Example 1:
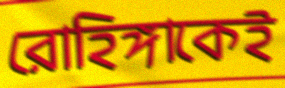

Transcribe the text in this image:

রোহিঙ্গাকেই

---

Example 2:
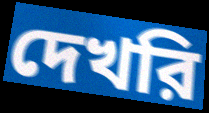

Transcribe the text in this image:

দেখরি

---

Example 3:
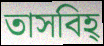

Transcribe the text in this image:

তাসবিহ্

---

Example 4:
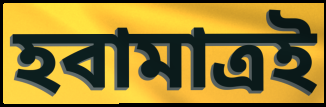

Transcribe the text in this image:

হবামাত্রই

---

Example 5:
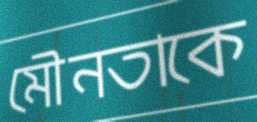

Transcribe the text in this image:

মৌনতাকে